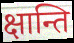
क्षान्ति